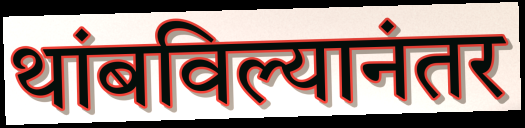
थांबविल्यानंतर